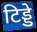
टिड्डे